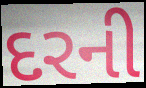
દરની